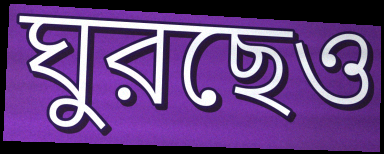
ঘুরছেও